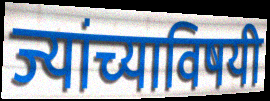
ज्यांच्याविषयी